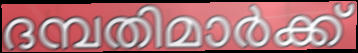
ദമ്പതിമാർക്ക്